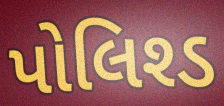
પોલિશ્ડ